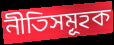
নীতিসমূহক